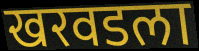
खरवडला